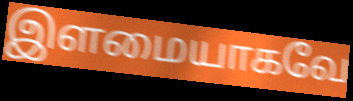
இளமையாகவே